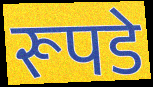
रूपडे